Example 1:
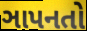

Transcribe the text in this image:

ઞાપનતો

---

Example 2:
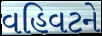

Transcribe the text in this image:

વહિવટને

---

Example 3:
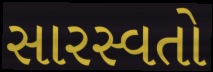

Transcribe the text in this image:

સારસ્વતો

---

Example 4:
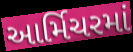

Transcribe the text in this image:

આર્મિચરમાં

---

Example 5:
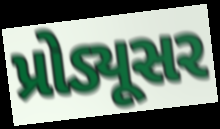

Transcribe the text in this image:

પ્રોડ્યૂસર